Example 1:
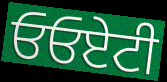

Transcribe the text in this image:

ਓਓਏਟੀ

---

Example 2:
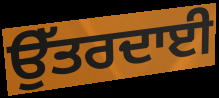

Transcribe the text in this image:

ਉੱਤਰਦਾਈ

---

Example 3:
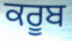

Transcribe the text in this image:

ਕਰੂਬ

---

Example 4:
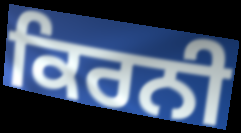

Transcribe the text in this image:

ਕਿਰਨੀ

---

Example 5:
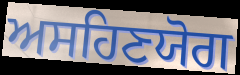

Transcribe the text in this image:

ਅਸਹਿਣਯੋਗ